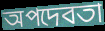
অপদেবতা